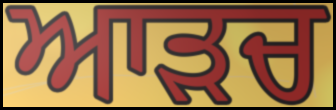
ਆੜਚ